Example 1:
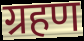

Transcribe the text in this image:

ग्रहण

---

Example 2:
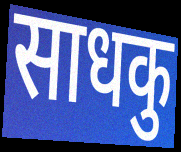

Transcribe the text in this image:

साधकु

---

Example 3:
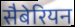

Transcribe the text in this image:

सैबेरियन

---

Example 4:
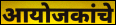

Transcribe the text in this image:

आयोजकांचे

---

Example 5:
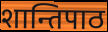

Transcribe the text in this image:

शान्तिपाठ